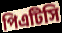
পিএটিসি